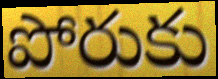
పోరుకు